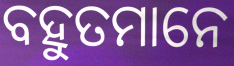
ବହୁତମାନେ